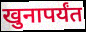
खुनापर्यंत